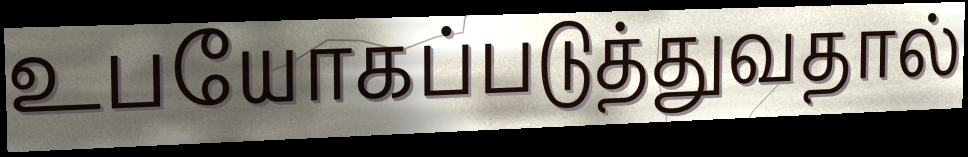
உபயோகப்படுத்துவதால்